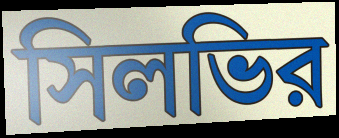
সিলভির